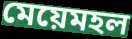
মেয়েমহল